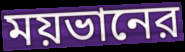
ময়ভানের